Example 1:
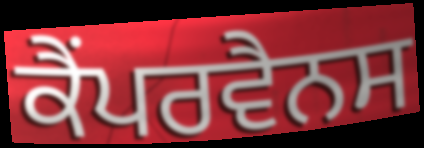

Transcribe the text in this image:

ਕੈਂਪਰਵੈਨਸ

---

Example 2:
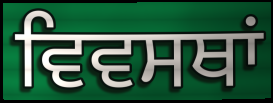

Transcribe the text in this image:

ਵਿਵਸਥਾਂ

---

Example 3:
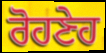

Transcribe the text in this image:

ਰੋਹਣੇਹ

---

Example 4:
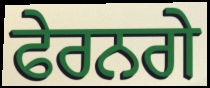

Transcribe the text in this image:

ਫੇਰਨਗੇ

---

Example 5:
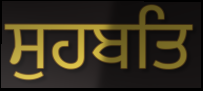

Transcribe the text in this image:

ਸੁਹਬਤਿ